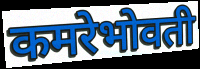
कमरेभोवती